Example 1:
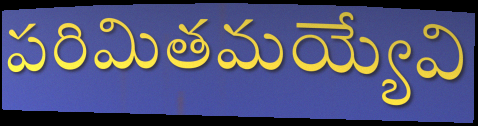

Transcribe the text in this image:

పరిమితమయ్యేవి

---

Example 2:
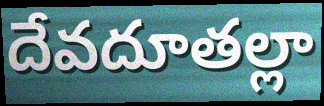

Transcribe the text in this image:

దేవదూతల్లా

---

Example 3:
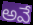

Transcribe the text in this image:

అవే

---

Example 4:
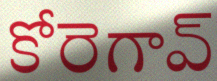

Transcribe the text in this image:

కోరెగావ్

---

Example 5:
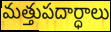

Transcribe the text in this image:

మత్తుపదార్ధాలు